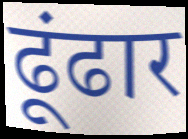
ढूंढार